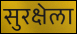
सुरक्षेला